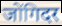
जोंगिदर